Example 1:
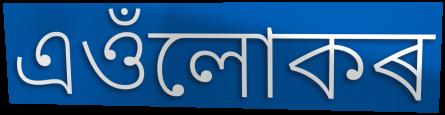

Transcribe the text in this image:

এওঁলোকৰ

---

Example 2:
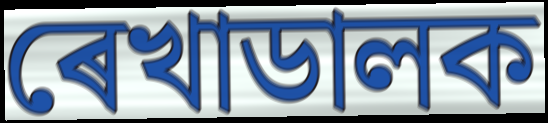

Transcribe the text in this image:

ৰেখাডালক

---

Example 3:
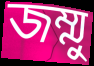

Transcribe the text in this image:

জম্মু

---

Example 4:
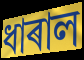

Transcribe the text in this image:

ধাৰাল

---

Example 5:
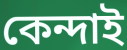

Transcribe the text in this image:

কেন্দাই